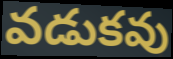
వడుకవు